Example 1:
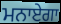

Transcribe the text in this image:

ਮਨਾਏਗਾ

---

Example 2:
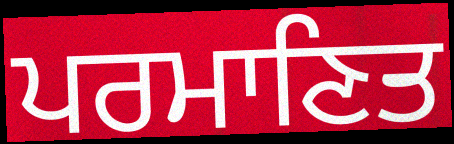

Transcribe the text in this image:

ਪਰਮਾਣਿਤ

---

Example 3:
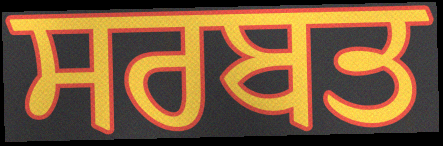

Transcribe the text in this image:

ਸਰਬਤ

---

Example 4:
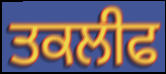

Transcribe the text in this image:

ਤਕਲੀਫ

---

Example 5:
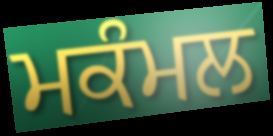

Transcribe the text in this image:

ਮਕੰਮਲ